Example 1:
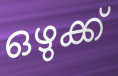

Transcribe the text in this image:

ഒഴുക്ക്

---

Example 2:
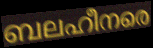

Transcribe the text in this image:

ബലഹീനരെ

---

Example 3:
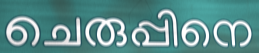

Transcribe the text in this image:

ചെരുപ്പിനെ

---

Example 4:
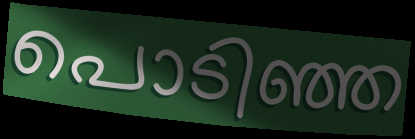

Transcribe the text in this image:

പൊടിഞ്ഞ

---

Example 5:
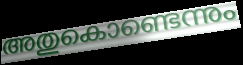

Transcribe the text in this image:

അതുകൊണ്ടെന്നും